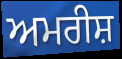
ਅਮਰੀਸ਼